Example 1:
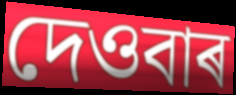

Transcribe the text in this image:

দেওবাৰ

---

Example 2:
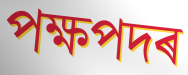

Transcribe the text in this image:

পক্ষপদৰ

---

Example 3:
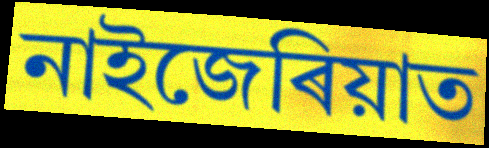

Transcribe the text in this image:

নাইজেৰিয়াত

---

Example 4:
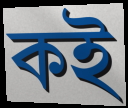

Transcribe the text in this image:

কই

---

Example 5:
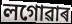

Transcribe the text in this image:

লগোৱাৰ